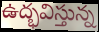
ఉద్భవిస్తున్న